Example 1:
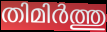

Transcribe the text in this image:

തിമിർത്തു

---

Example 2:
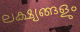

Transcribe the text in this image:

ലക്ഷ്യങ്ങളും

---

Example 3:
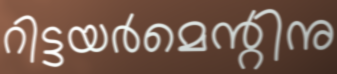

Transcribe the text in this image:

റിട്ടയർമെന്റിനു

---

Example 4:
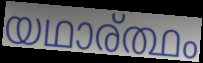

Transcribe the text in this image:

യഥാര്ത്ഥം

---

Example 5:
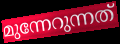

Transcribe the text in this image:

മുന്നേറുന്നത്